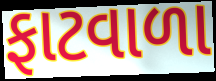
ફાટવાળા